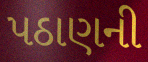
પઠાણની